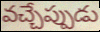
వచ్చేప్పుడు